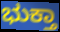
ಭುಕ್ತಾ